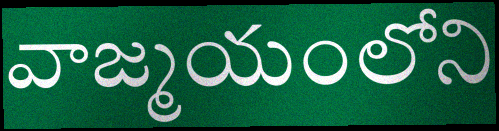
వాజ్మయంలోని